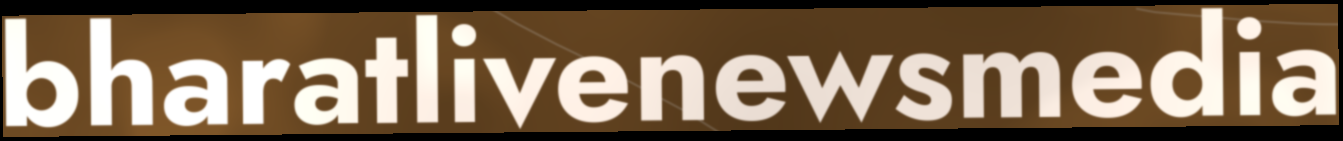
bharatlivenewsmedia